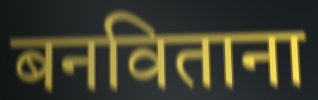
बनविताना